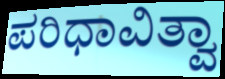
ಪರಿಧಾವಿತ್ವಾ